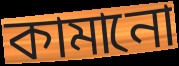
কামানো